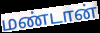
மண்டான்